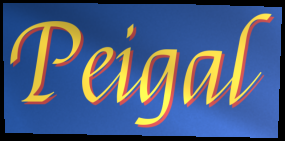
Peigal